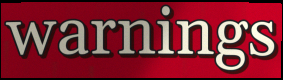
warnings